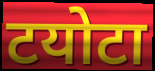
टयोटा